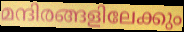
മന്ദിരങ്ങളിലേക്കും